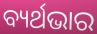
ବ୍ୟର୍ଥଭାର